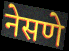
नेसणे